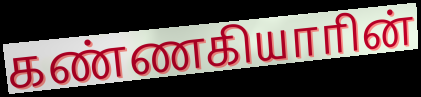
கண்ணகியாரின்